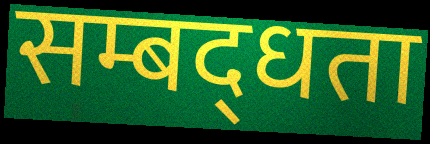
सम्‍बद्धता